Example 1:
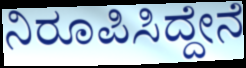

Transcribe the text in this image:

ನಿರೂಪಿಸಿದ್ದೇನೆ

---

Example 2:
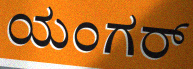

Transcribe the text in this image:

ಯಂಗರ್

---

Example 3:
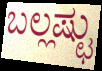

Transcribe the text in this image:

ಬಲ್ಲಷ್ಟು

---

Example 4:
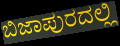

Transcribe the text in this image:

ಬಿಜಾಪುರದಲ್ಲಿ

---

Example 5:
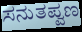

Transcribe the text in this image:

ಸನುತಪ್ವಣ